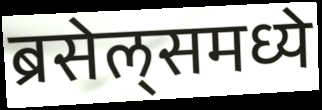
ब्रसेल्समध्ये